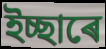
ইচ্ছাৰে